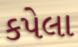
કપેલા